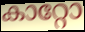
കാറ്റോ